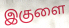
இகுளை